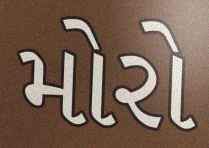
મોરો